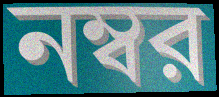
নম্বর